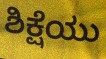
ಶಿಕ್ಷೆಯು